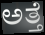
ಅತ್ತೆ